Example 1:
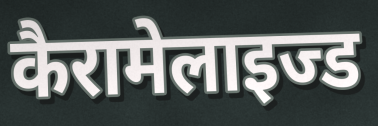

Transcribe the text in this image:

कैरामेलाइज्ड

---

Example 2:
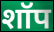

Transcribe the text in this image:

शॉप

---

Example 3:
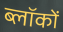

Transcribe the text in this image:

ब्लॉकों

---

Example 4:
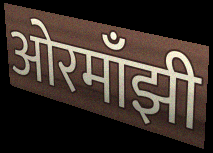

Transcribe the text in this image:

ओरमाँझी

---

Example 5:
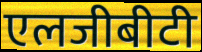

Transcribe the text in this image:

एलजीबीटी